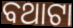
ବଥାଟା